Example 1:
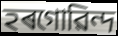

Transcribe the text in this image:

হৰগোৱিন্দ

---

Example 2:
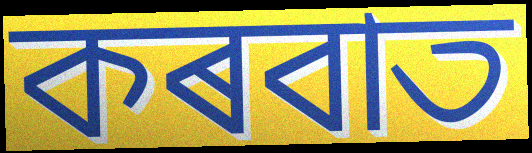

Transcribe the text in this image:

কৰবাত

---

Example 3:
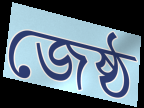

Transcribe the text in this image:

জেষ্ঠ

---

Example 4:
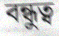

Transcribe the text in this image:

বন্ধুত্ব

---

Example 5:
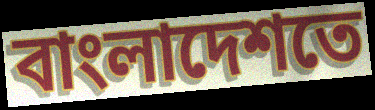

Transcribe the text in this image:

বাংলাদেশতে